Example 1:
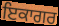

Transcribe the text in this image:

ਇਕਾਗਰ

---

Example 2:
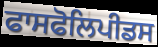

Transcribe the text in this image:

ਫਾਸਫੋਲਿਪੀਡਸ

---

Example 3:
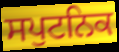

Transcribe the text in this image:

ਸਪੁਟਨਿਕ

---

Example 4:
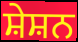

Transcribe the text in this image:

ਸ਼ੇਸ਼ਨ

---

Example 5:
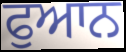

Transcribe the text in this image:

ਫੁਆਨ